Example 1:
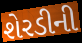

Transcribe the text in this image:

શેરડીની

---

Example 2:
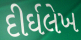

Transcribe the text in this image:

દીર્ઘલેખ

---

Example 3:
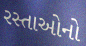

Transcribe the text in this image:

રસ્તાઓનો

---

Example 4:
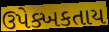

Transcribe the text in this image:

ઉપેક્ખકતાય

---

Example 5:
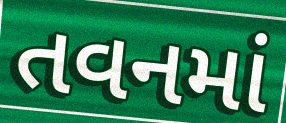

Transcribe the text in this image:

તવનમાં